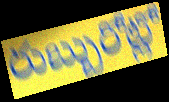
రుబ్బురోట్లో